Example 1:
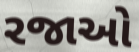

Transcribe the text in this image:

રજાઓ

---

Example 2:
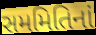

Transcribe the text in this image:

સમમિતિનાં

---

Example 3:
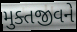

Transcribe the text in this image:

મુક્તજીવને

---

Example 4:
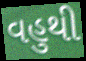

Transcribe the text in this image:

વહુથી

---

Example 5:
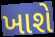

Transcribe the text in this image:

ખાશે